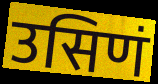
उसिणं